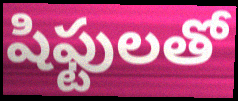
షిఫ్టులతో